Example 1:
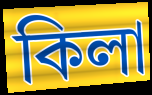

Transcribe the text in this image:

কিলা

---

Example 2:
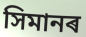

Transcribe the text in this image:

সিমানৰ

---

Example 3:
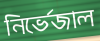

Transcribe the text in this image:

নিৰ্ভেজাল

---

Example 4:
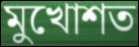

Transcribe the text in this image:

মুখোশত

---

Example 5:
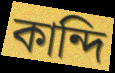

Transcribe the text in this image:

কান্দি